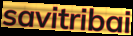
savitribai